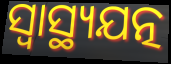
ସ୍ୱାସ୍ଥ୍ୟଯତ୍ନ